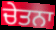
ਚੇਤਨਾ